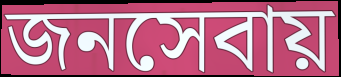
জনসেবায়